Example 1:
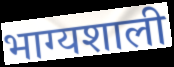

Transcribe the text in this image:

भाग्यशाली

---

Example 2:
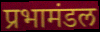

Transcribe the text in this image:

प्रभामंडल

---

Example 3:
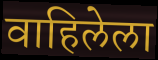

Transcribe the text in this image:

वाहिलेला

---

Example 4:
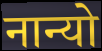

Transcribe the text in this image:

नान्यो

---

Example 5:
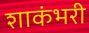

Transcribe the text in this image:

शाकंभरी